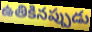
ఉతికినప్పుడు